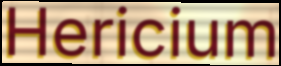
Hericium